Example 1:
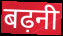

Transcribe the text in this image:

बढ़नी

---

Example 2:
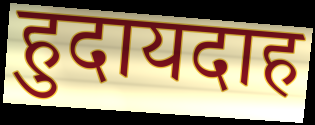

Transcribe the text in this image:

हुदायदाह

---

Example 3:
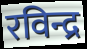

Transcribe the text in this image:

रविन्द्र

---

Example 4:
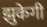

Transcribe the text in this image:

झुकेगी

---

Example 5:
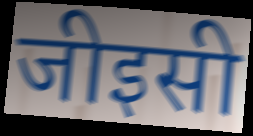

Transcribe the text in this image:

जीइसी